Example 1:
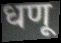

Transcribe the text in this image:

धणू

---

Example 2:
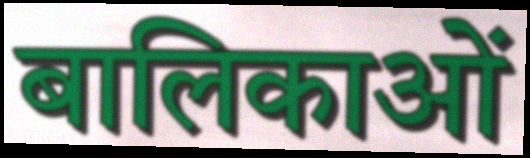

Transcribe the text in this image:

बालिकाओं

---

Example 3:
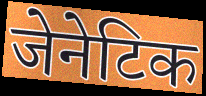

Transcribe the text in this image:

जेनेटिक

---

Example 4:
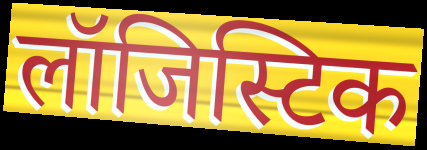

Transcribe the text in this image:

लॉजिस्टिक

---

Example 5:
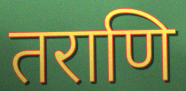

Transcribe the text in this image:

तराणि